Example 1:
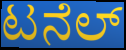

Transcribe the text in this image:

ಟನೆಲ್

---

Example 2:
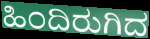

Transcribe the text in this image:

ಹಿಂದಿರುಗಿದ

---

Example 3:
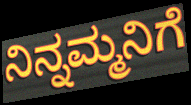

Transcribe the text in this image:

ನಿನ್ನಮ್ಮನಿಗೆ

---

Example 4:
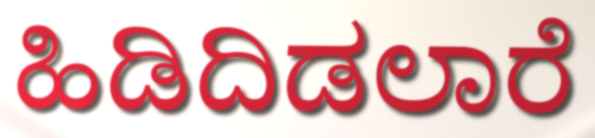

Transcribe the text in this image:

ಹಿಡಿದಿಡಲಾರೆ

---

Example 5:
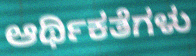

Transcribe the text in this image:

ಆರ್ಥಿಕತೆಗಳು